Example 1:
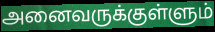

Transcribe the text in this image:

அனைவருக்குள்ளும்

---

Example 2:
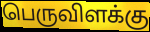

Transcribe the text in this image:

பெருவிளக்கு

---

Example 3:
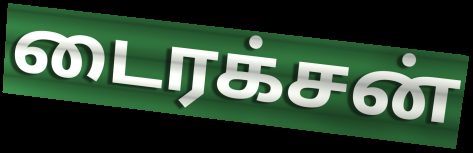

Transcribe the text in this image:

டைரக்சன்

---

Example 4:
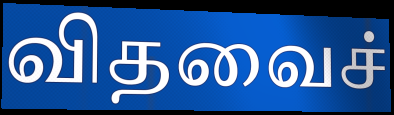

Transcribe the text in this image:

விதவைச்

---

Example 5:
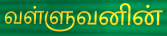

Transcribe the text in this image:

வள்ளுவனின்